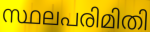
സ്ഥലപരിമിതി